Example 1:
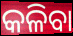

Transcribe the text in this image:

କଳିବା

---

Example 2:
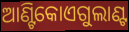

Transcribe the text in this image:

ଆଣ୍ଟିକୋଏଗୁଲାଣ୍ଟ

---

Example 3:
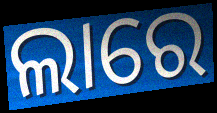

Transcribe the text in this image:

ଲାରେ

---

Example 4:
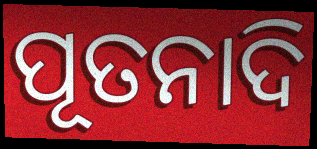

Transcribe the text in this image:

ପୂତନାଦି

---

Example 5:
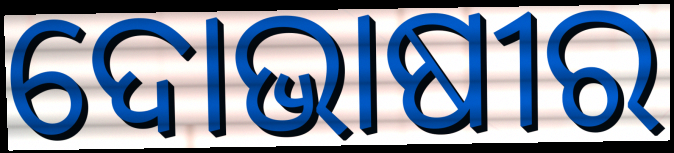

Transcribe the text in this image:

ଦୋଭାଷୀର